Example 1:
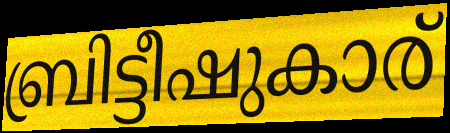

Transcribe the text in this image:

ബ്രിട്ടീഷുകാര്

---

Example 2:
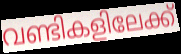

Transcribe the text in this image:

വണ്ടികളിലേക്ക്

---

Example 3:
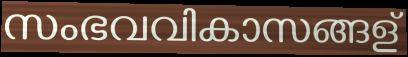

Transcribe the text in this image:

സംഭവവികാസങ്ങള്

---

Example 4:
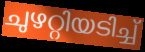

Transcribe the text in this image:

ചുഴറ്റിയടിച്ച്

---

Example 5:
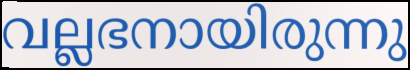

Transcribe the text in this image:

വല്ലഭനായിരുന്നു